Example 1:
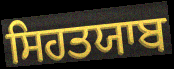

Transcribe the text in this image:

ਸਿਹਤਯਾਬ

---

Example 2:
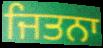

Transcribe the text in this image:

ਜਿਤਨਾ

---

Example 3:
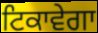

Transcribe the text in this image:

ਟਿਕਾਵੇਗਾ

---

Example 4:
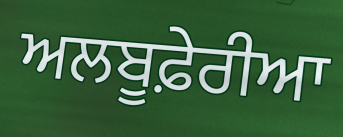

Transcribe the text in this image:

ਅਲਬੂਫ਼ੇਰੀਆ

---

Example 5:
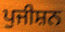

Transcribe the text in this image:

ਪੁਜੀਸ਼ਨ